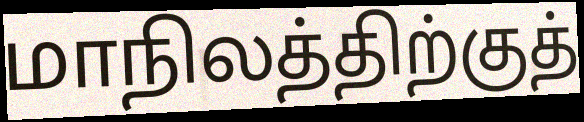
மாநிலத்திற்குத்